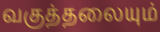
வகுத்தலையும்